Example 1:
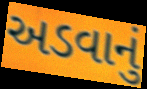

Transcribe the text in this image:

અડવાનું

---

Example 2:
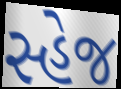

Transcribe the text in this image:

સ્હેજ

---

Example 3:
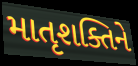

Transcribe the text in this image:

માતૃશક્તિને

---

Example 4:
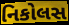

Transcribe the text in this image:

નિકોલસ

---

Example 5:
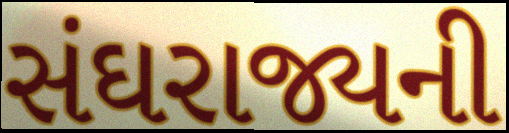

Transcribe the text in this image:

સંઘરાજ્યની